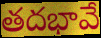
తదభావే